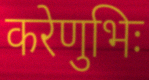
करेणुभिः